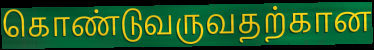
கொண்டுவருவதற்கான